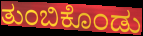
ತುಂಬಿಕೊಂಡು